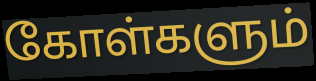
கோள்களும்